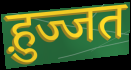
ह़ुज्जत